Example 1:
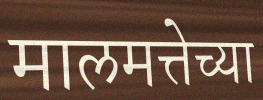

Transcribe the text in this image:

मालमत्तेच्या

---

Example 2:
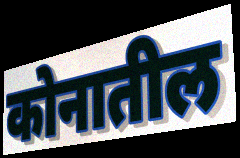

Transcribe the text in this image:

कोनातील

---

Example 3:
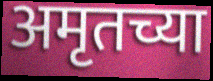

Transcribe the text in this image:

अमृतच्या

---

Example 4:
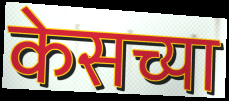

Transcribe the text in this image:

केसच्या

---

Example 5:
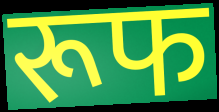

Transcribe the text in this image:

रूफ